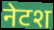
नेटश